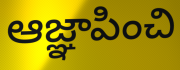
ఆజ్ఞాపించి